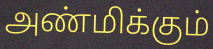
அண்மிக்கும்